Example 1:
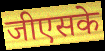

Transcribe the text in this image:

जीएसके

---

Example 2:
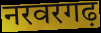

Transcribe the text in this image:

नरवरगढ़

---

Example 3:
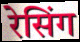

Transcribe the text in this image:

रेसिंग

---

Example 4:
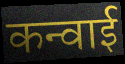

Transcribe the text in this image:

कन्वाई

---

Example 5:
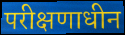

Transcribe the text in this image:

परीक्षणाधीन